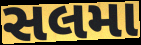
સલમા